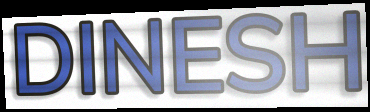
DINESH